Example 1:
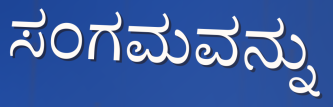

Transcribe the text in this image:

ಸಂಗಮವನ್ನು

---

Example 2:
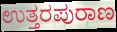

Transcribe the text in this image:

ಉತ್ತರಪುರಾಣ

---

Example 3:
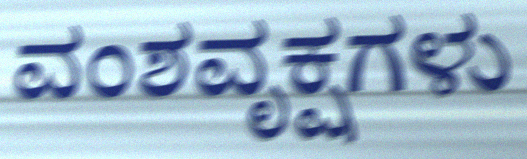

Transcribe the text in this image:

ವಂಶವೃಕ್ಷಗಳು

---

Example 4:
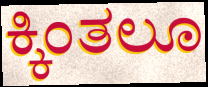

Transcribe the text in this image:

ಕ್ಕಿಂತಲೂ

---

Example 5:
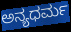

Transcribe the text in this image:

ಅನ್ಯಧರ್ಮ